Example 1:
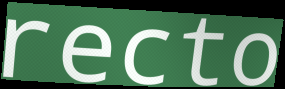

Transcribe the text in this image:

recto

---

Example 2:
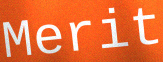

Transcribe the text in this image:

Merit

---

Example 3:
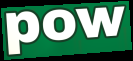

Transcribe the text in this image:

pow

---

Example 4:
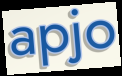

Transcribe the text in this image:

apjo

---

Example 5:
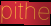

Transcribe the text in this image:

pithe